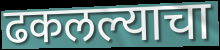
ढकलल्याचा